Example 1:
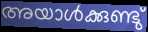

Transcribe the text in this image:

അയാൾക്കുണ്ടു്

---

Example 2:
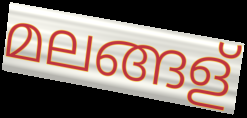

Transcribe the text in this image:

മലങ്ങള്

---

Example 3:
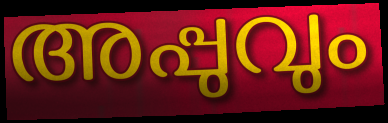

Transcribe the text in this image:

അപ്പുവും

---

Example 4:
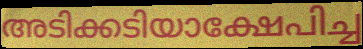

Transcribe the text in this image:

അടിക്കടിയാക്ഷേപിച്ച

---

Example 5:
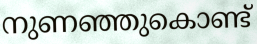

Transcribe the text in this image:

നുണഞ്ഞുകൊണ്ട്